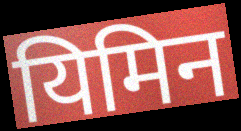
यिमिन